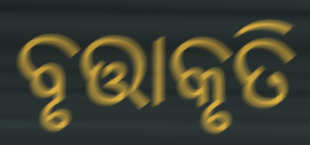
ବୃତ୍ତାକୃତି